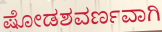
ಷೋಡಶವರ್ಣವಾಗಿ